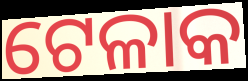
ଟେଳାକ